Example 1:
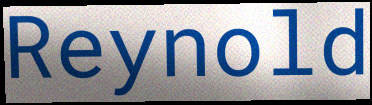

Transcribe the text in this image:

Reynold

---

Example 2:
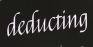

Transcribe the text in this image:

deducting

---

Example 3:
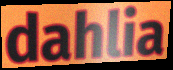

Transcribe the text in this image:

dahlia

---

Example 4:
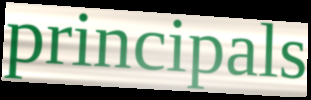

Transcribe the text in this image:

principals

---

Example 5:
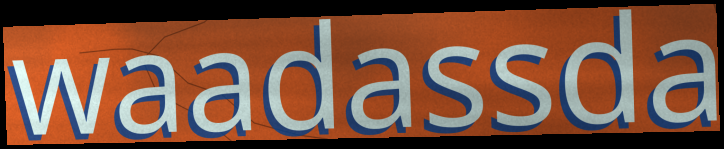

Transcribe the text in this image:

waadassda